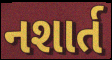
નશાર્ત